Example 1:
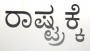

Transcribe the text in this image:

ರಾಷ್ಟ್ರಕ್ಕೆ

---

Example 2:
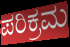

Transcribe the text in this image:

ಪರಿಕ್ರಮ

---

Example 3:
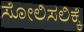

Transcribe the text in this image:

ಸೋಲಿಸಲಿಕ್ಕೆ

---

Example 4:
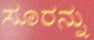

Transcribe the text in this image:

ಸೂರನ್ನು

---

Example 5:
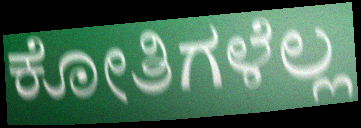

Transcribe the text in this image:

ಕೋತಿಗಳೆಲ್ಲ